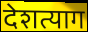
देशत्याग